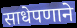
साधेपणाने